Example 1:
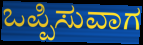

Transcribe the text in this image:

ಒಪ್ಪಿಸುವಾಗ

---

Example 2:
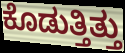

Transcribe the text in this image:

ಕೊಡುತ್ತಿತ್ತು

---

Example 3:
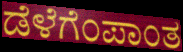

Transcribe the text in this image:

ಡೆಳೆಗೆಂಪಾಂತ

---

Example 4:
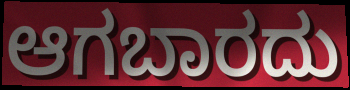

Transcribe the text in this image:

ಆಗಬಾರದು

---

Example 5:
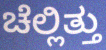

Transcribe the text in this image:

ಚೆಲ್ಲಿತ್ತು